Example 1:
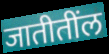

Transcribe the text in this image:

जातीतींल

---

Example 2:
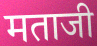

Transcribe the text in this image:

मताजी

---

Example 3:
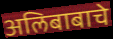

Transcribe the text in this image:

अलिबाबाचे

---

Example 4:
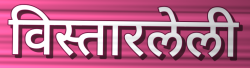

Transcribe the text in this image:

विस्तारलेली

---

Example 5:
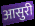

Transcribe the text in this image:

आसुरी